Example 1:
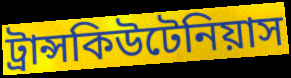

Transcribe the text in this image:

ট্রান্সকিউটেনিয়াস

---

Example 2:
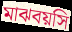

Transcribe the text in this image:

মাঝবয়সি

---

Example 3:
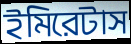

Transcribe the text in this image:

ইমিরেটাস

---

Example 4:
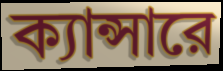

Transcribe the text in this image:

ক্যান্সারে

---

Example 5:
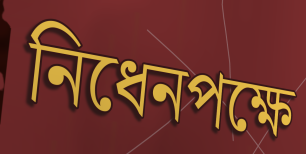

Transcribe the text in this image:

নিধেনপক্ষে